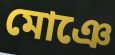
মোঞে